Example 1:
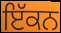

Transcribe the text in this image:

ਇੱਕਨ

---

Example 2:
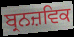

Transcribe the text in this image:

ਬ੍ਰਨਜ਼ਵਿਕ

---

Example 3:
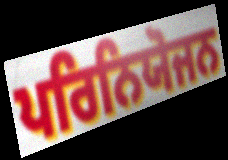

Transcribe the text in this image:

ਪਰਿਨਿਯੋਜਨ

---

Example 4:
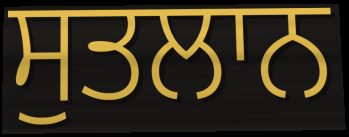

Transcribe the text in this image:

ਸੁਤਲਾਨ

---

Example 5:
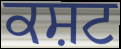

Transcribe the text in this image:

ਕਸ਼ਟ